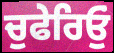
ਚੁਫੇਰਿਓੁਂ